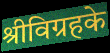
श्रीविग्रहके